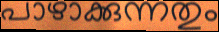
പാഴാക്കുന്നതും